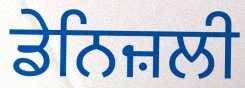
ਡੇਨਿਜ਼ਲੀ